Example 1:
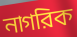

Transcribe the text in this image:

নাগরিক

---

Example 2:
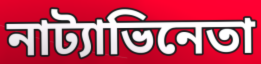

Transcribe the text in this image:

নাট্যাভিনেতা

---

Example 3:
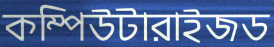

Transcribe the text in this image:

কম্পিউটারাইজড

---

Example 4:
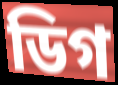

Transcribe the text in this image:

ডিগ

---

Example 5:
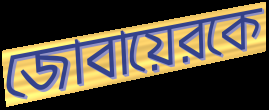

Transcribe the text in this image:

জোবায়েরকে